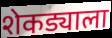
शेकड्याला